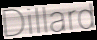
Dillard